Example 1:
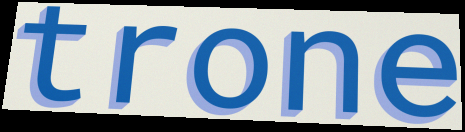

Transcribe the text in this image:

trone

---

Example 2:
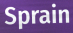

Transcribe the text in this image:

Sprain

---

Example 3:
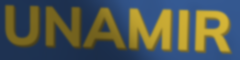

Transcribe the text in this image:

UNAMIR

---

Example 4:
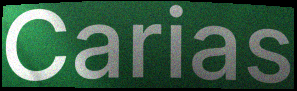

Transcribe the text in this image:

Carias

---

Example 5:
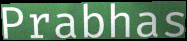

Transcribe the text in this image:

Prabhas